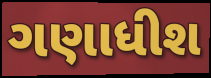
ગણાધીશ